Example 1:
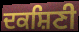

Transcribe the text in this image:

ਦਕਸ਼ਿਣੀ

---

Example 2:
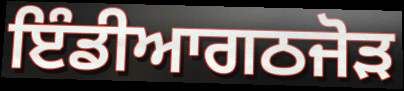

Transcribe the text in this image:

ਇੰਡੀਆਗਠਜੋੜ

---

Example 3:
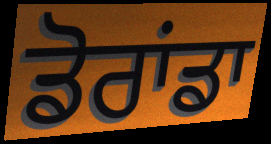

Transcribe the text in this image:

ਡੋਰਾਂਡਾ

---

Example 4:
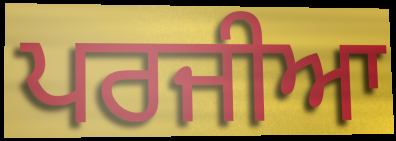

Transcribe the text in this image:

ਪਰਜੀਆ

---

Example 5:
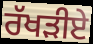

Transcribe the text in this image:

ਰੱਖੜੀਏ